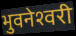
भुवनेश्वरी